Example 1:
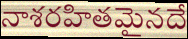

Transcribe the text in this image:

నాశరహితమైనదే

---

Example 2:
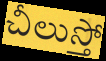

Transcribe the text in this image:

చీలుస్తో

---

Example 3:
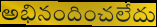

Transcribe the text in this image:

అభినందించలేదు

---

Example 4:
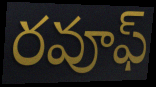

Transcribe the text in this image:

రవూఫ్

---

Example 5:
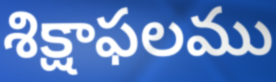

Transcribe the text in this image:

శిక్షాఫలము